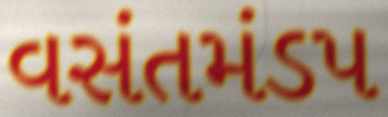
વસંતમંડપ